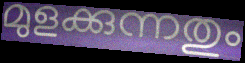
മുളക്കുന്നതും